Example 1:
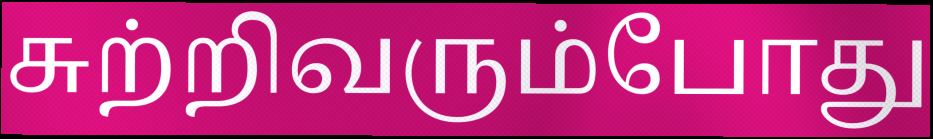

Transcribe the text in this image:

சுற்றிவரும்போது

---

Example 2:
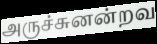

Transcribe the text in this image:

அருச்சுனன்றவ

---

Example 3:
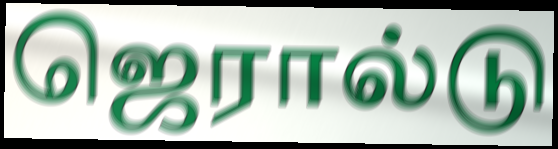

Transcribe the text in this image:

ஜெரால்டு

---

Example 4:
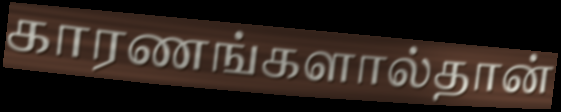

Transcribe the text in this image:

காரணங்களால்தான்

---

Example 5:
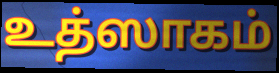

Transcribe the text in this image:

உத்ஸாகம்